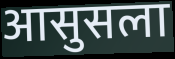
आसुसला